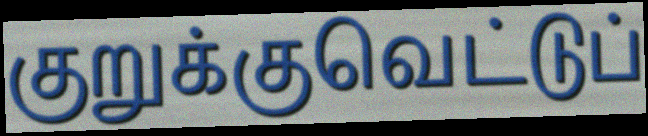
குறுக்குவெட்டுப்